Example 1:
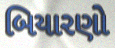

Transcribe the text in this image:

બિયારણો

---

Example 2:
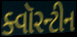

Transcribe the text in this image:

ક્વૉરન્ટીન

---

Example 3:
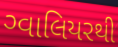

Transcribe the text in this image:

ગ્વાલિયરથી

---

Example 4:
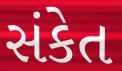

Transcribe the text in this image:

સંકેત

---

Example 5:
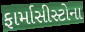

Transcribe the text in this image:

ફાર્માસીસ્ટોના